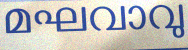
മഘവാവു